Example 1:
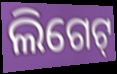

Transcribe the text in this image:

ଲିଗେଟ୍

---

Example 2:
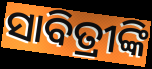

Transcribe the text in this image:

ସାବିତ୍ରୀଙ୍କି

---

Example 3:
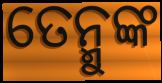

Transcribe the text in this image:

ତେନ୍ମୁଙ୍କ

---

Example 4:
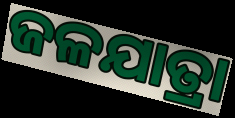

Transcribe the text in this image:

ଜଳଯାତ୍ରା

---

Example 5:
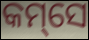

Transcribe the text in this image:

କମ୍‌ସେ